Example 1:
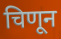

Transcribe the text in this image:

चिणून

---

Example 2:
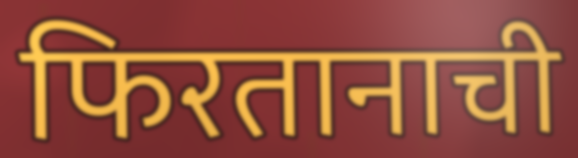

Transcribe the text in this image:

फिरतानाची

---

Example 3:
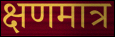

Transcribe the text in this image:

क्षणमात्र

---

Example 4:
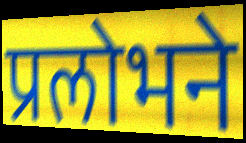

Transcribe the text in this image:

प्रलोभने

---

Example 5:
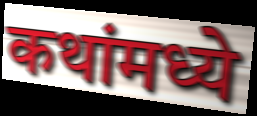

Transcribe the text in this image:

कथांमध्ये